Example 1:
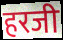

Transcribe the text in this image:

हरजी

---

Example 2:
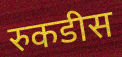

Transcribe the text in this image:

रुकडीस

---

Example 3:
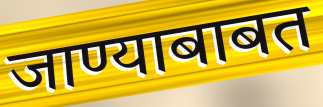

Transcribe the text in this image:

जाण्याबाबत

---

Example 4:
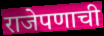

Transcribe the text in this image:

राजेपणाची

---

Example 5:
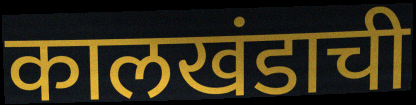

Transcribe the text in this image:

कालखंडाची